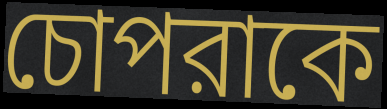
চোপরাকে